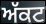
ਅੱਕਟ